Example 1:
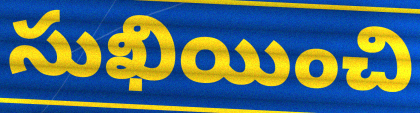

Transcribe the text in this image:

సుఖియించి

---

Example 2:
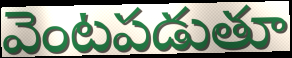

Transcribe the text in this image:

వెంటపడుతూ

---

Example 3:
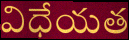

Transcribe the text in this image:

విధేయత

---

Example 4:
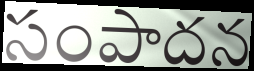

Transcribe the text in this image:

సంపాదన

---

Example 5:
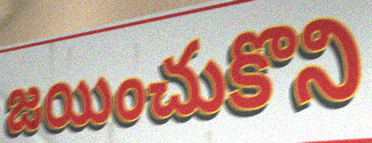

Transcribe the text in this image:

జయించుకొని